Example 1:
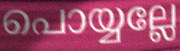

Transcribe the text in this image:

പൊയ്യല്ലേ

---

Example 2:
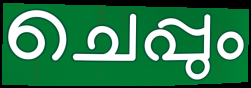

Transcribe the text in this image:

ചെപ്പും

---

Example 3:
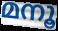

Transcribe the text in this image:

മനൂ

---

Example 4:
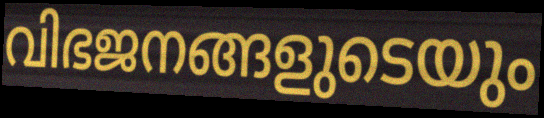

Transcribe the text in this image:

വിഭജനങ്ങളുടെയും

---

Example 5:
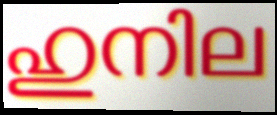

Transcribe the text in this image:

ഹുനില